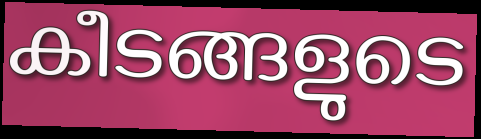
കീടങ്ങളുടെ